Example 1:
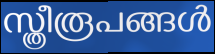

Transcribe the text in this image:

സ്ത്രീരൂപങ്ങൾ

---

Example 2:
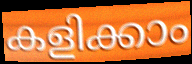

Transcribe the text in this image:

കളിക്കാം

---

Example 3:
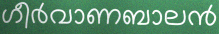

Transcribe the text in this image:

ഗീർവാണബാലൻ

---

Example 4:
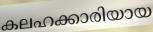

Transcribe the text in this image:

കലഹക്കാരിയായ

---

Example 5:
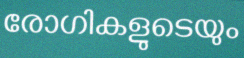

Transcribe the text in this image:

രോഗികളുടെയും